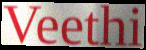
Veethi